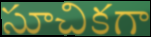
సూచికగా